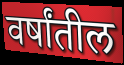
वर्षांतील